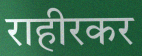
राहीरकर